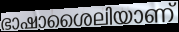
ഭാഷാശൈലിയാണ്